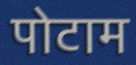
पोटाम